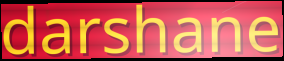
darshane